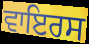
ਵਾਇਰਸ